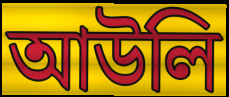
আউলি